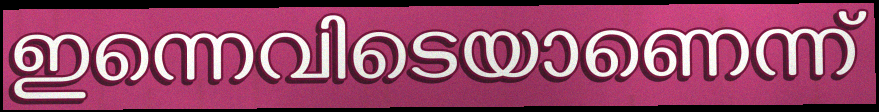
ഇന്നെവിടെയാണെന്ന്